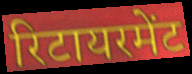
रिटायरमेंट